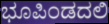
ಭೂಪಿಂಡದಲಿ